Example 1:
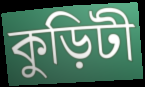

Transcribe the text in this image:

কুড়িটী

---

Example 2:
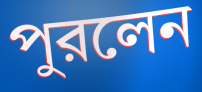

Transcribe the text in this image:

পুরলেন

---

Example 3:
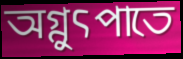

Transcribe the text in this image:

অগ্নুৎপাতে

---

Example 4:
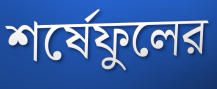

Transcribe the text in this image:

শর্ষেফুলের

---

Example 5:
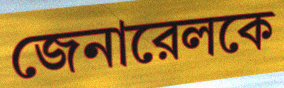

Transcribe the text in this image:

জেনারেলকে